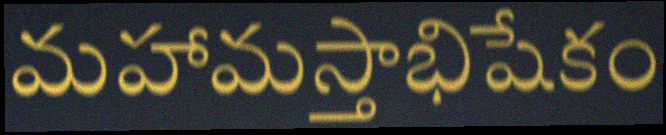
మహామస్తాభిషేకం